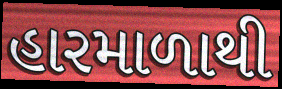
હારમાળાથી